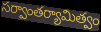
సర్వాంతర్యామిత్వం